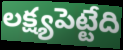
లక్ష్యపెట్టేది